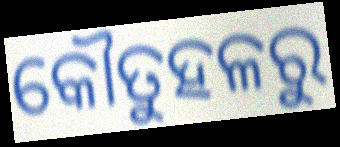
କୌତୁହଳରୁ